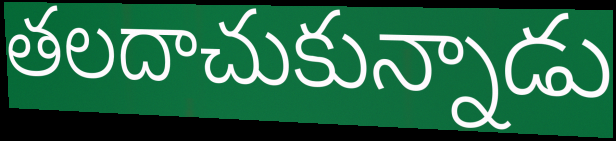
తలదాచుకున్నాడు